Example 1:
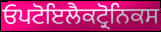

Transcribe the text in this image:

ਓਪਟੋਇਲੈਕਟ੍ਰੋਨਿਕਸ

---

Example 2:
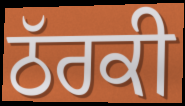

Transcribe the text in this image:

ਠੱਰਕੀ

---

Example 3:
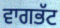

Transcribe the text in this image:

ਵਾਗਭੱਟ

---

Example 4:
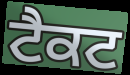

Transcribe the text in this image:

ਟੈਕਟ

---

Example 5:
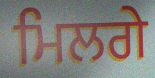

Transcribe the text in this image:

ਮਿਲਗੇ